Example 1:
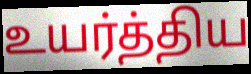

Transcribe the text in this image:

உயர்த்திய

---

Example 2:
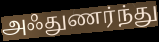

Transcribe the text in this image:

அஃதுணர்ந்து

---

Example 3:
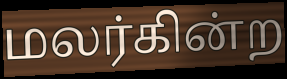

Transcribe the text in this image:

மலர்கின்ற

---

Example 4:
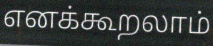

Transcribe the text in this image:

எனக்கூறலாம்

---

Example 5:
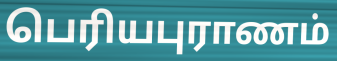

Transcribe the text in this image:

பெரியபுராணம்